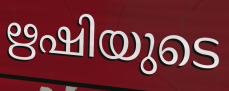
ഋഷിയുടെ